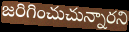
జరిగించుచున్నారని